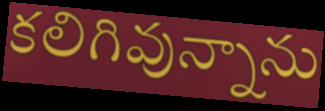
కలిగివున్నాను